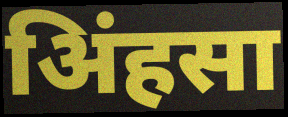
अिंहसा